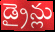
డ్రైన్లు